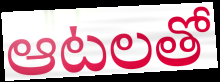
ఆటలతో